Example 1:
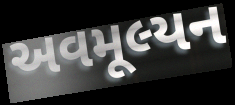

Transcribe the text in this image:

અવમૂલ્યન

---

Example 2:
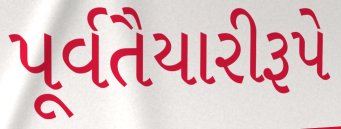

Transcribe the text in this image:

પૂર્વતૈયારીરૂપે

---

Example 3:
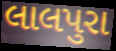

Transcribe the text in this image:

લાલપુરા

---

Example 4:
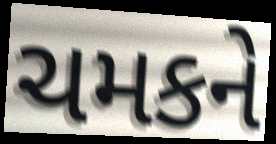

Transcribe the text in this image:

ચમકને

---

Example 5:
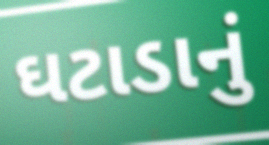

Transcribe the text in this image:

ઘટાડાનું